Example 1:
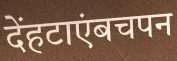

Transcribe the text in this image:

देंहटाएंबचपन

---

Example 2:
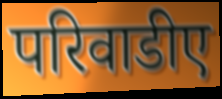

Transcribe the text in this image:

परिवाडीए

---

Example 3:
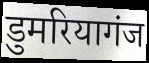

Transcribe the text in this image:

डुमरियागंज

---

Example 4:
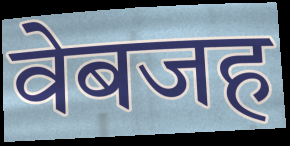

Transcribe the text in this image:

वेबजह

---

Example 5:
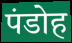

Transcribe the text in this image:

पंडोह